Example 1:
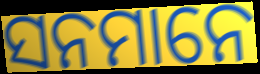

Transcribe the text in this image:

ସନମାନେ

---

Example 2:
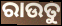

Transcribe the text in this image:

ରାଉତୁ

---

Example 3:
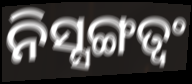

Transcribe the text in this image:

ନିସ୍ସଙ୍ଗତ୍ୱଂ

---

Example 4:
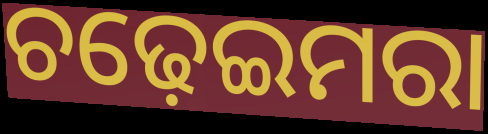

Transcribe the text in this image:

ଚଢ଼େଇମରା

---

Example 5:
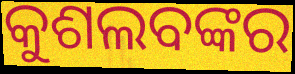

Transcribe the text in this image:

କୁଶଲବଙ୍କର